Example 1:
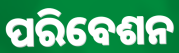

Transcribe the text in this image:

ପରିବେଶନ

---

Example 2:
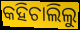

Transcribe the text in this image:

କହିଚାଲିଲୁ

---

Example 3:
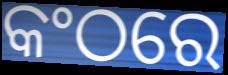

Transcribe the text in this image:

କଂଠରେ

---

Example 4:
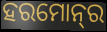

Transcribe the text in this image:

ହରମୋନ୍‍ର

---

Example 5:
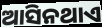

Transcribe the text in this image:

ଆସିନଥାଏ